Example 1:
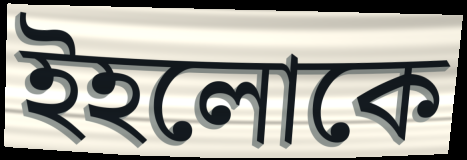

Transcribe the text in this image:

ইহলোকে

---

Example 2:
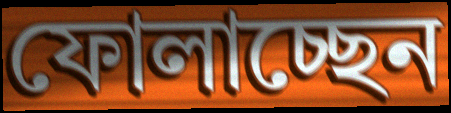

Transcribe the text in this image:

ফোলাচ্ছেন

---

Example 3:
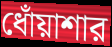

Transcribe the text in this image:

ধোঁয়াশার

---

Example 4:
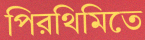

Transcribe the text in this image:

পিরথিমিতে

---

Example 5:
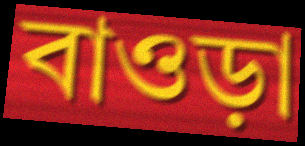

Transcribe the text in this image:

বাওড়া